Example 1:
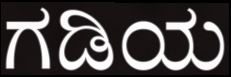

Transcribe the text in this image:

ಗಡಿಯ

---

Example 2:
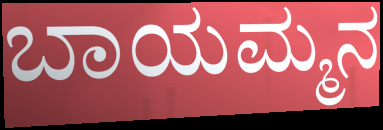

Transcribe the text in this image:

ಬಾಯಮ್ಮನ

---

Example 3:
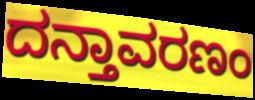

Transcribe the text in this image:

ದನ್ತಾವರಣಂ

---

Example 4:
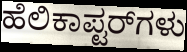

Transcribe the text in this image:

ಹೆಲಿಕಾಪ್ಟರ್‌ಗಳು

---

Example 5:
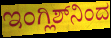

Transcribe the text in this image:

ಇಂಗ್ಲಿಶ್‌ನಿಂದ